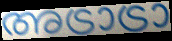
അട്രാട്രാ